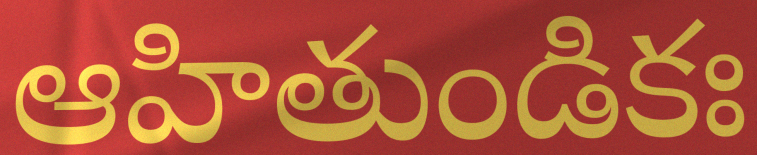
ఆహితుండికః